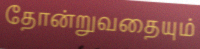
தோன்றுவதையும்